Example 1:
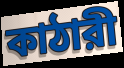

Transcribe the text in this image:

কাঠারী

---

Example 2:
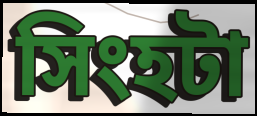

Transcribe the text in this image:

সিংহটা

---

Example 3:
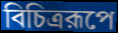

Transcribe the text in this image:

বিচিত্ররূপে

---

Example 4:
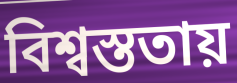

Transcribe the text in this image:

বিশ্বস্ততায়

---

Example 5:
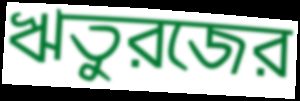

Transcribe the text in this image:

ঋতুরজের